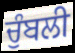
ਚੁੰਬਲੀ